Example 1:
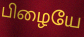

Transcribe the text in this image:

பிழையே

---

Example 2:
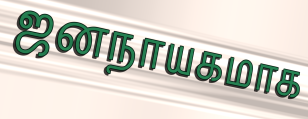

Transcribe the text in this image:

ஜனநாயகமாக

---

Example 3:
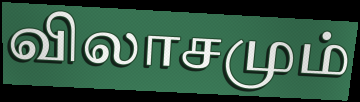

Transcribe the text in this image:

விலாசமும்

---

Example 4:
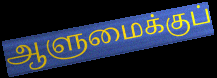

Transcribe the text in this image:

ஆளுமைக்குப்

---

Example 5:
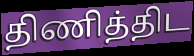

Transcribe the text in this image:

திணித்திட